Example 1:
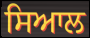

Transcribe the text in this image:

ਸਿਆਲ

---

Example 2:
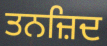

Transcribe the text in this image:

ਤਨਜ਼ਿਦ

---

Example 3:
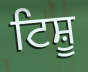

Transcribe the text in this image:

ਟਿਸ਼ੂ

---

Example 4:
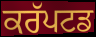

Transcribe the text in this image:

ਕਰੱਪਟਡ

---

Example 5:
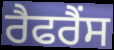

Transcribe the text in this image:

ਰੈਫਰੈਂਸ